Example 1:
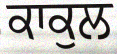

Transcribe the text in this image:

ਕਾਕੁਲ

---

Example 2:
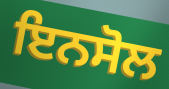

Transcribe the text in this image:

ਇਨਸੋਲ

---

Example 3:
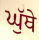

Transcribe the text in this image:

ਘੁੱਥੇ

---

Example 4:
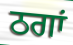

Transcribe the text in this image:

ਠਗਾਂ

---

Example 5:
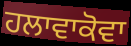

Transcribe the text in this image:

ਹਲਾਵਾਕੋਵਾ